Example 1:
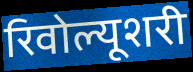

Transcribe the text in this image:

रिवोल्यूशरी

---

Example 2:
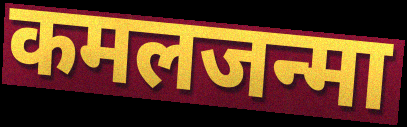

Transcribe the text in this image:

कमलजन्मा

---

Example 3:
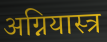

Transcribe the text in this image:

अग्नियास्त्र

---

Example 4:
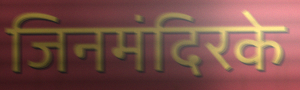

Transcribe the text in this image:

जिनमंदिरके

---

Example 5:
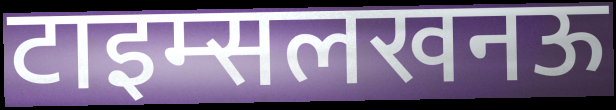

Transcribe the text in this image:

टाइम्सलखनऊ